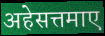
अहेसत्तमाए